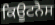
ਕਿਊਟਨੈਸ